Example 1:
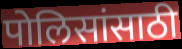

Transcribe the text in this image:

पोलिसांसाठी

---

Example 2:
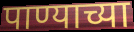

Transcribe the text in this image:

पाण्याच्या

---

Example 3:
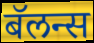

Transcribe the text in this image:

बॅलन्स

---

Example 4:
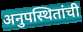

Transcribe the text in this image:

अनुपस्थितांची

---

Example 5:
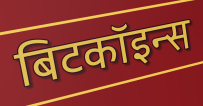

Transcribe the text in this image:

बिटकॉइन्स